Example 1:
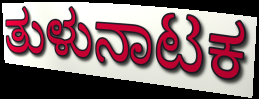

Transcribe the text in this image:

ತುಳುನಾಟಕ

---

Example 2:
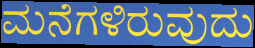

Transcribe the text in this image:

ಮನೆಗಳಿರುವುದು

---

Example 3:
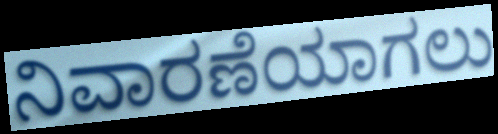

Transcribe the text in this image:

ನಿವಾರಣೆಯಾಗಲು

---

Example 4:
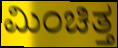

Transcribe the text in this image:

ಮಿಂಚಿತ್ತ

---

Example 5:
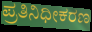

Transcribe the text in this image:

ಪ್ರತಿನಿಧೀಕರಣ